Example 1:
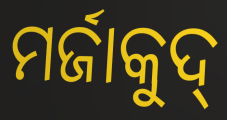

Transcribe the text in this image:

ମର୍ଜାକୁଦ୍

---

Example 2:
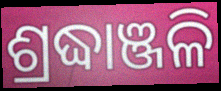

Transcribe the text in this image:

ଶ୍ରଦ୍ଧାଞ୍ଜଳି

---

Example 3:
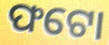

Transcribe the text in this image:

ଫଟୋ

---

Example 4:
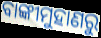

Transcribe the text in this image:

ବାଙ୍କୀମୁହାଣରୁ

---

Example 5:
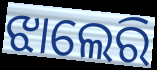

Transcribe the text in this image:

ଝାଲେରି